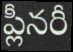
ప్లీనరీ